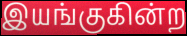
இயங்குகின்ற